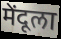
मेंदूला